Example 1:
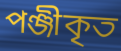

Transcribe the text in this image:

পঞ্জীকৃত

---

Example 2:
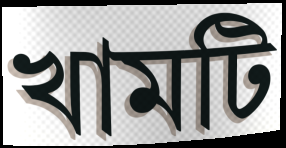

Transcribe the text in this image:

খামটি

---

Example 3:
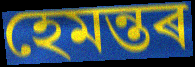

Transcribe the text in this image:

হেমন্তৰ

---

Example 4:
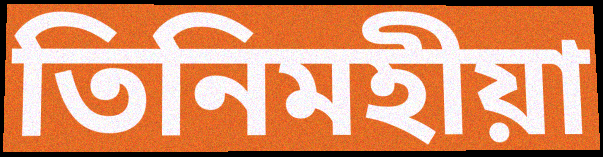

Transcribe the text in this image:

তিনিমহীয়া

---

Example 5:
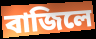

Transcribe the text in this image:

বাজিলে